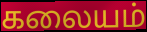
கலையம்